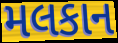
મલકાન